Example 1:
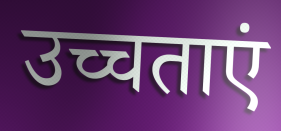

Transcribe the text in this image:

उच्चताएं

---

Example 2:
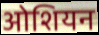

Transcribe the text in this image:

ओशियन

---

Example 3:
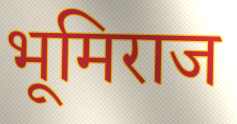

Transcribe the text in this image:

भूमिराज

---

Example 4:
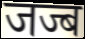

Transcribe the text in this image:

जज्ब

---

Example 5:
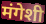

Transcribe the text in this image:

मंगेशी